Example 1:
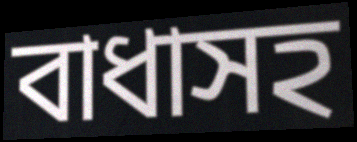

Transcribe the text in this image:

বাধাসহ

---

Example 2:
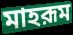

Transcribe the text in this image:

মাহরূম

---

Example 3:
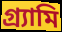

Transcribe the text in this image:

গ্র্যামি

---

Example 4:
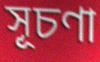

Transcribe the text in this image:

সূচণা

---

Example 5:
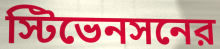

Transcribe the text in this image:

স্টিভেনসনের